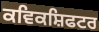
ਕਵਿਕਸ਼ਿਫਟਰ